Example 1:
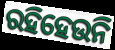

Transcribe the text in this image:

ରହିହେଉନି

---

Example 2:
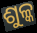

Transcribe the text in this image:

ଶୁଳ୍କ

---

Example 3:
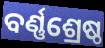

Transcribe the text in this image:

ବର୍ଣ୍ଣଶ୍ରେଷ୍ଠ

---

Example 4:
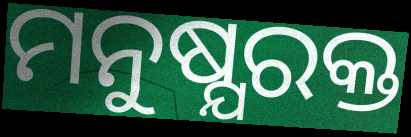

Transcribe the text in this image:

ମନୁଷ୍ଯରକ୍ତ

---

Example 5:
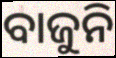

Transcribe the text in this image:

ବାଜୁନି